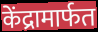
केंद्रामार्फत